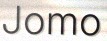
Jomo